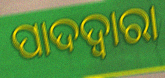
ପାଦଦ୍ଵାରା